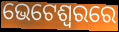
ଭେଟେଶ୍ୱରରେ